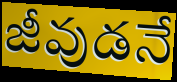
జీవుడనే